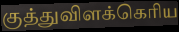
குத்துவிளக்கெரிய